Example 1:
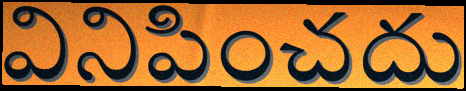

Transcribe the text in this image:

వినిపించదు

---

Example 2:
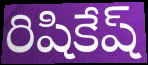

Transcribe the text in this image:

రిషికేష్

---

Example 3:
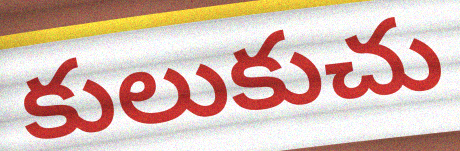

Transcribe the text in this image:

కులుకుచు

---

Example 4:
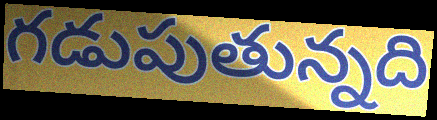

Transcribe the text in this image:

గడుపుతున్నది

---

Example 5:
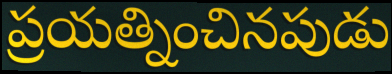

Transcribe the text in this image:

ప్రయత్నించినపుడు